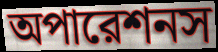
অপারেশনস